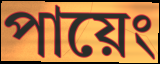
পায়েং